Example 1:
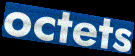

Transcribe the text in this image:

octets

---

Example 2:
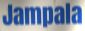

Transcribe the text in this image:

Jampala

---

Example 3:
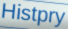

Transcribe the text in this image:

Histpry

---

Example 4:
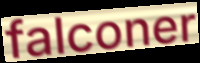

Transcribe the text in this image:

falconer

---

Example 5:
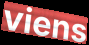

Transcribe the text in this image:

viens